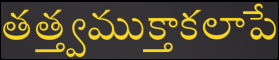
తత్త్వముక్తాకలాపే